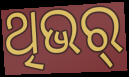
ଥିଭର୍